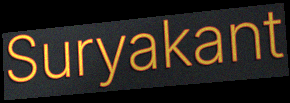
Suryakant